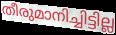
തീരുമാനിച്ചിട്ടില്ല